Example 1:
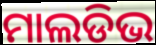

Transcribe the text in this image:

ମାଲଡିଭ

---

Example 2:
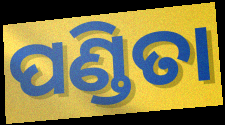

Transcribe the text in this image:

ପଣ୍ଡିତା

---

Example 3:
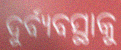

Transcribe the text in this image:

ଦୁର୍ବ୍ୟବସ୍ଥାକୁ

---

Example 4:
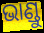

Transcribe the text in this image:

ଭାଣ୍ଡୁ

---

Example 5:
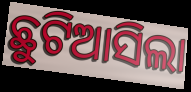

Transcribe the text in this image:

ଛୁଟିଆସିଲା